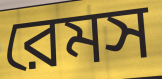
রেমস